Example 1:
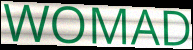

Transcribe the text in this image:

WOMAD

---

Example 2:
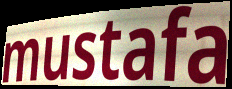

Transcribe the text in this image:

mustafa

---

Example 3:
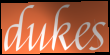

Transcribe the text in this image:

dukes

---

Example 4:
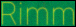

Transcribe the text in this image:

Rimm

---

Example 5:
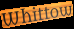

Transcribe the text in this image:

Whittow